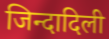
जिन्दादिली